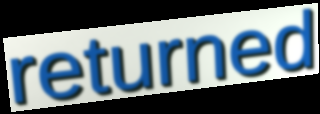
returned